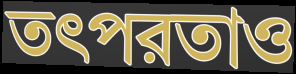
তৎপরতাও